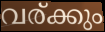
വര്ക്കും